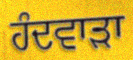
ਹੰਦਵਾੜਾ